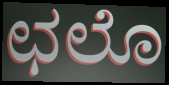
ಛಲೊ